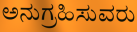
ಅನುಗ್ರಹಿಸುವರು